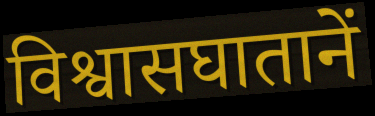
विश्वासघातानें